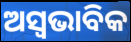
ଅସ୍ୱଭାବିକ